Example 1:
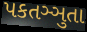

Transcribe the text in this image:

પકતઞ્ઞુતા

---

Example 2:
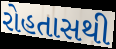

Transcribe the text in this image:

રોહતાસથી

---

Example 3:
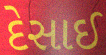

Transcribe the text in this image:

દેસાઈ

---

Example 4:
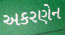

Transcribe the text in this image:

અકરણેન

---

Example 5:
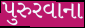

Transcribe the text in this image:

પુરુરવાના